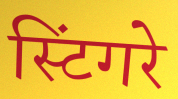
स्टिंगरे